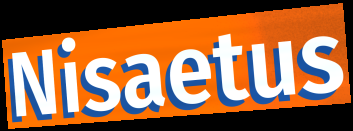
Nisaetus